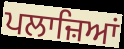
ਪਲਾਜ਼ਿਆਂ